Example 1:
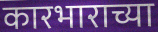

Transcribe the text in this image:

कारभाराच्या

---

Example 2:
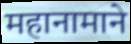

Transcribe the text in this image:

महानामाने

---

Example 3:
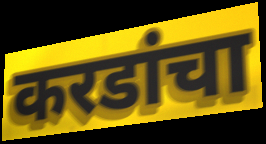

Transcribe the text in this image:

करडांचा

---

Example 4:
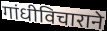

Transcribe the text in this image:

गांधीविचाराने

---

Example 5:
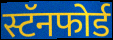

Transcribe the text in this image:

स्टॅनफोर्ड